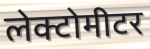
लेक्टोमीटर